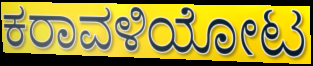
ಕರಾವಳಿಯೋಟ